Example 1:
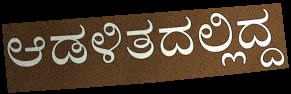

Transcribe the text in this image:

ಆಡಳಿತದಲ್ಲಿದ್ದ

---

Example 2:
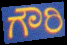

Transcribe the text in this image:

ಗೌರಿ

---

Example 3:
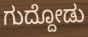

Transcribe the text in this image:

ಗುದ್ದೋಡು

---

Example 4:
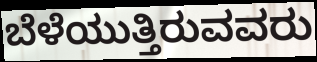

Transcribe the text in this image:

ಬೆಳೆಯುತ್ತಿರುವವರು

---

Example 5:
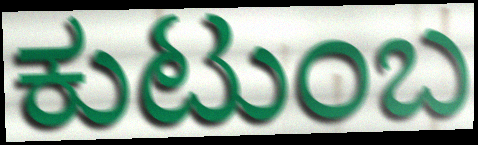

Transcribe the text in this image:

ಕುಟುಂಬ